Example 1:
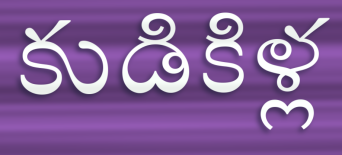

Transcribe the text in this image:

కుడికిళ్ల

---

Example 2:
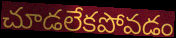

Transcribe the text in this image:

చూడలేకపోవడం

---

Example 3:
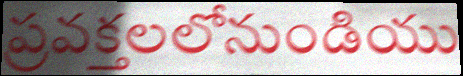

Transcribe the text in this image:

ప్రవక్తలలోనుండియు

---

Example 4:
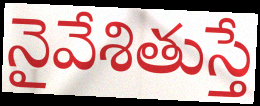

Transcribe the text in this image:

నైవేశితుస్తే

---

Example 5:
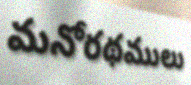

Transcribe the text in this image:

మనోరథములు